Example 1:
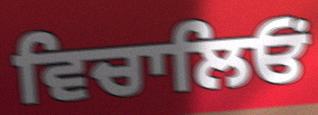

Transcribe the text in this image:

ਵਿਚਾਲਿਓਂ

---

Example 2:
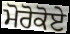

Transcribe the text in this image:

ਮੋਰੋਕੋਏ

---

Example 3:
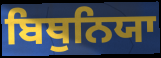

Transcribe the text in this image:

ਬਿਥੁਨਿਯਾ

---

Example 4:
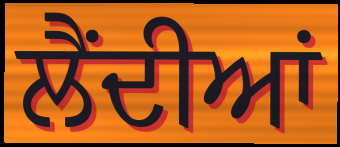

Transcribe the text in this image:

ਲੈਂਦੀਆਂ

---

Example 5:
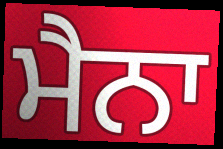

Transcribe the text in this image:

ਮੈਨਾ